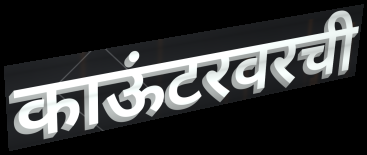
काऊंटरवरची